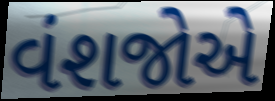
વંશજોએ